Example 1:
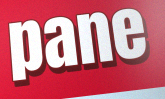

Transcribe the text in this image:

pane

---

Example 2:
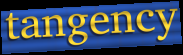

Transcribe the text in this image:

tangency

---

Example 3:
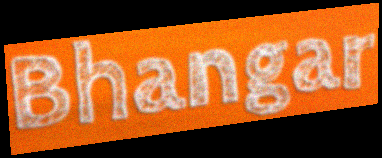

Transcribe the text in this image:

Bhangar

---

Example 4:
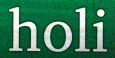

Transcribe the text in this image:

holi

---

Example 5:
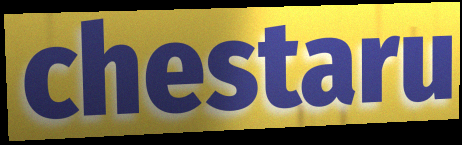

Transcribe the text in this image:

chestaru